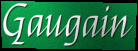
Gaugain